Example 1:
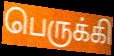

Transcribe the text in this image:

பெருக்கி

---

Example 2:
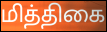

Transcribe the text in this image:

மித்திகை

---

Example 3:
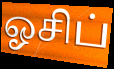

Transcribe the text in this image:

ஓசிப்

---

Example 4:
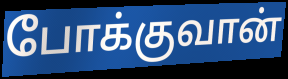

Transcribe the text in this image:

போக்குவான்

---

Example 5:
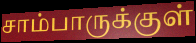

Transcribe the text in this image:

சாம்பாருக்குள்